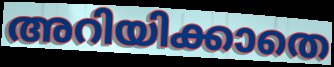
അറിയിക്കാതെ